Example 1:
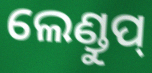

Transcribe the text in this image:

ଲେଣ୍ଡୁପ୍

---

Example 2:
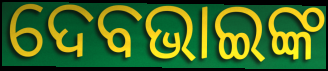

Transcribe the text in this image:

ଦେବଭାଇଙ୍କ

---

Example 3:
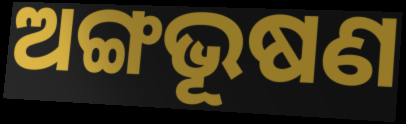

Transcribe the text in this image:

ଅଙ୍ଗଭୂଷଣ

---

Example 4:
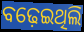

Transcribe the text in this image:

ବଢ଼େଇଥିଲି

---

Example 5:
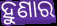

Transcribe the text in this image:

ହୁଣାର